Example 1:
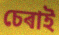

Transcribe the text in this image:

চেৰাই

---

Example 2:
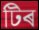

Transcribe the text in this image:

টিৰ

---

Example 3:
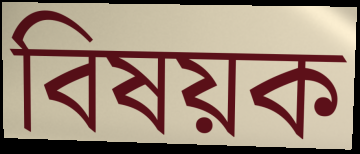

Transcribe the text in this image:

বিষয়ক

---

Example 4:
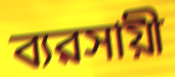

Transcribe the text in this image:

ব্যৱসায়ী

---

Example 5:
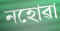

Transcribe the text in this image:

নহোৱা